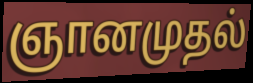
ஞானமுதல்